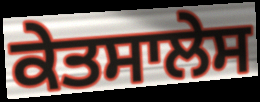
ਕੇਤਸਾਲੇਸ